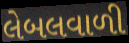
લેબલવાળી